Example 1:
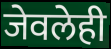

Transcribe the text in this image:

जेवलेही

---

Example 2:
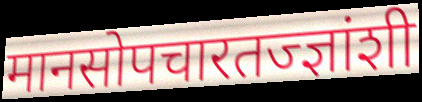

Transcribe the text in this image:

मानसोपचारतज्ज्ञांशी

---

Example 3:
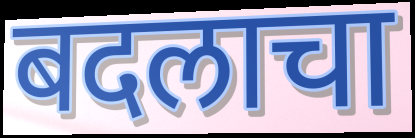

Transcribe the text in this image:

बदलाचा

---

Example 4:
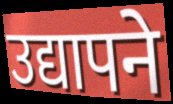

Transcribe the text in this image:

उद्यापने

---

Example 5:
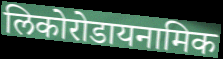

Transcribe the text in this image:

लिकोरोडायनामिक